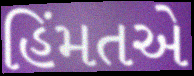
હિંમતએ